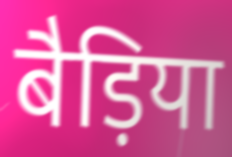
बैड़िया